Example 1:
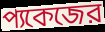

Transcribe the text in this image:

প্যকেজের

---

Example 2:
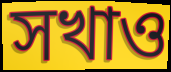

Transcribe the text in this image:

সখাও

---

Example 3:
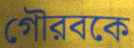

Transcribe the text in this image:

গৌরবকে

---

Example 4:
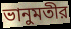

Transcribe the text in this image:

ভানুমতীর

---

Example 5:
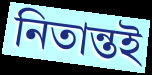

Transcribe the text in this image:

নিতান্তই